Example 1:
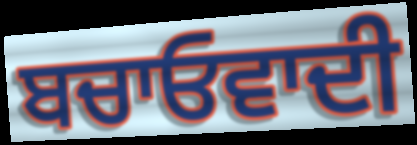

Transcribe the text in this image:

ਬਚਾਓਵਾਦੀ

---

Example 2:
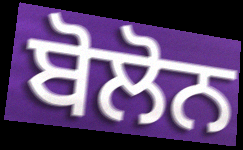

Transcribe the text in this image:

ਬੋਲੋਨ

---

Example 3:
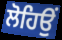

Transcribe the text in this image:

ਲੋਹਿਉਂ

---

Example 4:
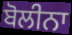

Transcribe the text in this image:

ਬੋਲੀਨਾ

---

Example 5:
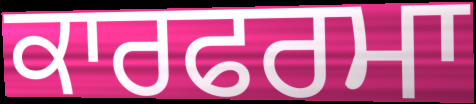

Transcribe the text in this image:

ਕਾਰਫਰਮਾ